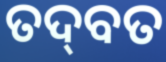
ତଦ୍‌ବତ